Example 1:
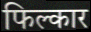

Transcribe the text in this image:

फिल्कार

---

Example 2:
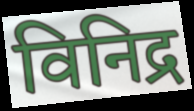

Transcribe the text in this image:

विनिद्र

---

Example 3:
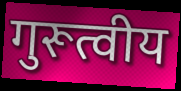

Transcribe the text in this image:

गुरूत्वीय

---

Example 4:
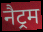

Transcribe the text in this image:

नैट्रम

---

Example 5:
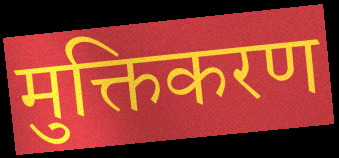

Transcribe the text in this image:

मुक्तिकरण